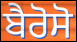
ਬੈਰੋਸੋ